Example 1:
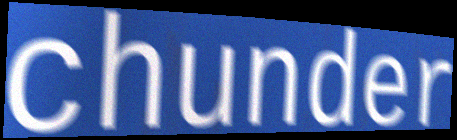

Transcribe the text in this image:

chunder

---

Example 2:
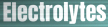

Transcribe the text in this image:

Electrolytes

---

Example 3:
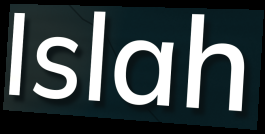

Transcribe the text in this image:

Islah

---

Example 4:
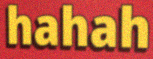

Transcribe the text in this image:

hahah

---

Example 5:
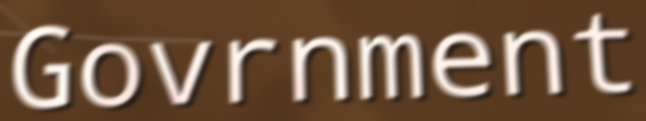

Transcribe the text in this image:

Govrnment